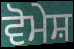
ਵੋਮੇਸ਼